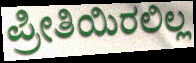
ಪ್ರೀತಿಯಿರಲಿಲ್ಲ